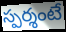
స్పర్శంటే